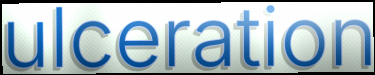
ulceration